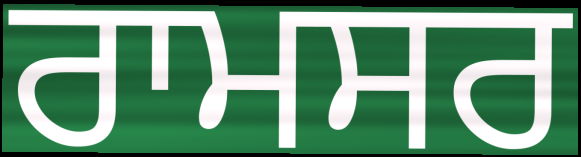
ਰਾਮਸਰ